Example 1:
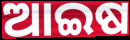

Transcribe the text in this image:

ଆଇଷ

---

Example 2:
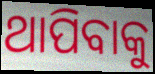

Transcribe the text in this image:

ଥାପିବାକୁ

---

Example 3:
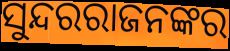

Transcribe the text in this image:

ସୁନ୍ଦରରାଜନଙ୍କର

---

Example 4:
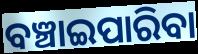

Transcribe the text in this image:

ବଞ୍ଚାଇପାରିବା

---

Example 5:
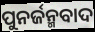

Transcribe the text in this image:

ପୁନର୍ଜନ୍ମବାଦ